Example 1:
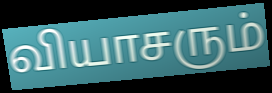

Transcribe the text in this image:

வியாசரும்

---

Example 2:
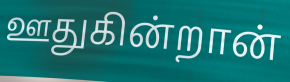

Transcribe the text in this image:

ஊதுகின்றான்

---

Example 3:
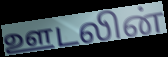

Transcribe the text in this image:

ஊடலின்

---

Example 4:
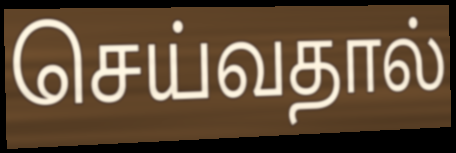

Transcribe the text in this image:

செய்வதால்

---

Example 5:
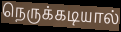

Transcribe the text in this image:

நெருக்கடியால்